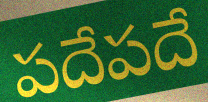
పదేపదే